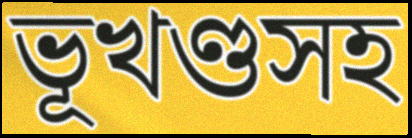
ভূখণ্ডসহ